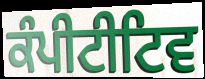
ਕੰਪੀਟੀਟਿਵ